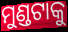
ମୁଣ୍ଡଟାକୁ